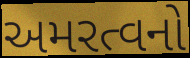
અમરત્વનો